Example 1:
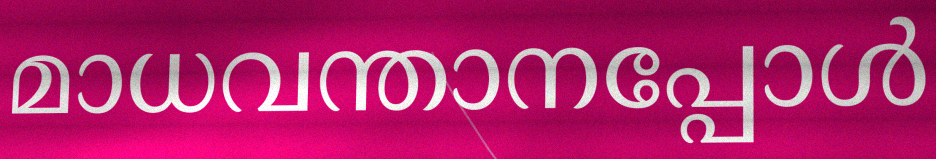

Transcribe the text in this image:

മാധവന്താനപ്പോൾ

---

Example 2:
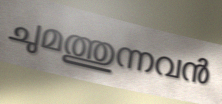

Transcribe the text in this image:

ചുമത്തുന്നവൻ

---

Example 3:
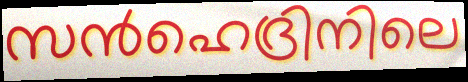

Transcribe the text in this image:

സൻഹെദ്രിനിലെ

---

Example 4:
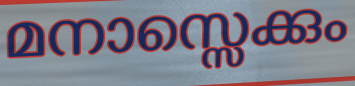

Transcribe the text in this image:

മനാസ്സെക്കും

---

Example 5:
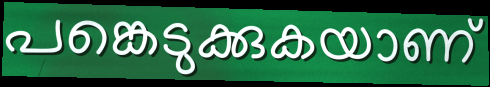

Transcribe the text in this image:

പങ്കെടുക്കുകയാണ്